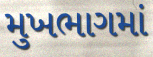
મુખભાગમાં